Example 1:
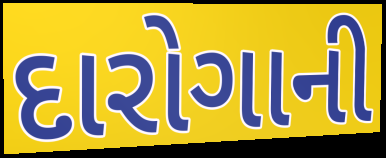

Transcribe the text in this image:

દારોગાની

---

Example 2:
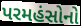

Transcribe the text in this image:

પરમહંસોનો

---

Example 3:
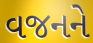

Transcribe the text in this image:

વજનને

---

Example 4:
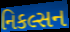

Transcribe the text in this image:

નિકલ્સન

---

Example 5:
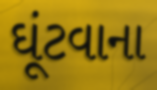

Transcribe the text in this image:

ઘૂંટવાના